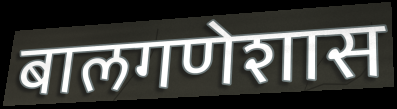
बालगणेशास